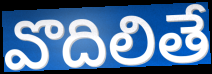
వొదిలితే